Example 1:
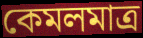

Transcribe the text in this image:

কেমলমাত্র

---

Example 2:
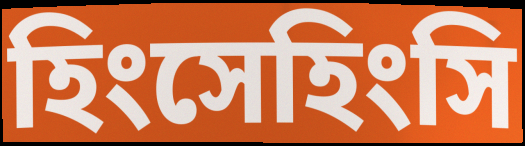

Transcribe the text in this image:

হিংসেহিংসি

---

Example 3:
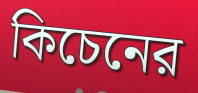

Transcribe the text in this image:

কিচেনের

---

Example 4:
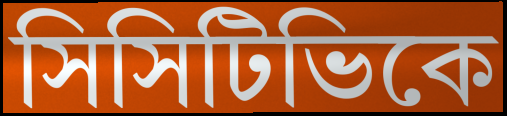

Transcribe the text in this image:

সিসিটিভিকে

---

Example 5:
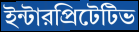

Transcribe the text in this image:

ইন্টারপ্রিটেটিভ